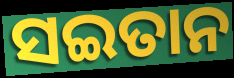
ସଇତାନ